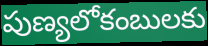
పుణ్యలోకంబులకు